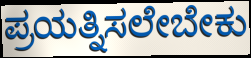
ಪ್ರಯತ್ನಿಸಲೇಬೇಕು